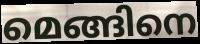
മെങ്ങിനെ